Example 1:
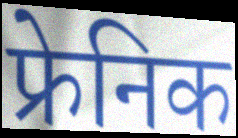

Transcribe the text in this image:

फ्रेनिक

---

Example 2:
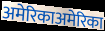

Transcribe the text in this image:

अमेरिकाअमेरिका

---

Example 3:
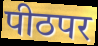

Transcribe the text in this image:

पीठपर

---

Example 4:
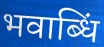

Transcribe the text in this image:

भवाब्धिं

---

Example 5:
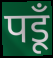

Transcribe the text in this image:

पडूँ